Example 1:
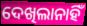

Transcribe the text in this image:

ଦେଖିଲାନାହିଁ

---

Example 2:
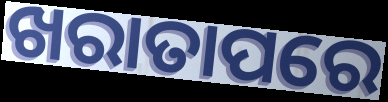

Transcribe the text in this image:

ଖରାତାପରେ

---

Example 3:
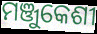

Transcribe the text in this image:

ମଞ୍ଜୁକେଶୀ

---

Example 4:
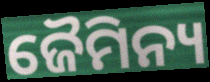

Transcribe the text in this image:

ଜୈମିନ୍ୟ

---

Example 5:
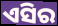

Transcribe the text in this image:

ଏସିର